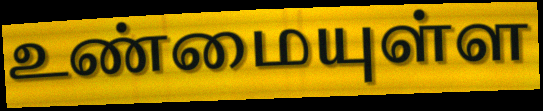
உண்மையுள்ள